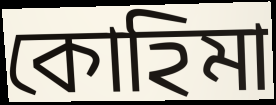
কোহিমা